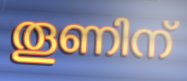
തൂണിന്